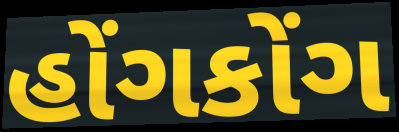
હોંગકોંગ